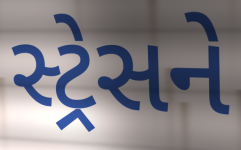
સ્ટ્રેસને